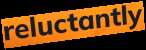
reluctantly